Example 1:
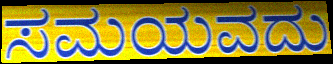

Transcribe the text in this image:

ಸಮಯವದು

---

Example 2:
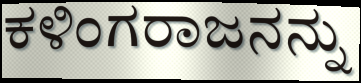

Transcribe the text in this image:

ಕಳಿಂಗರಾಜನನ್ನು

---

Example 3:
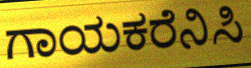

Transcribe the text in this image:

ಗಾಯಕರೆನಿಸಿ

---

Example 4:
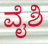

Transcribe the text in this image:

ವೈಶಿ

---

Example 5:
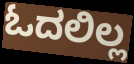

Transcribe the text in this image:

ಓದಲಿಲ್ಲ